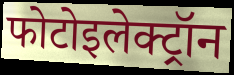
फोटोइलेक्ट्रॉन